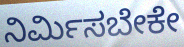
ನಿರ್ಮಿಸಬೇಕೇ